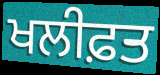
ਖਲੀਫ਼ਤ